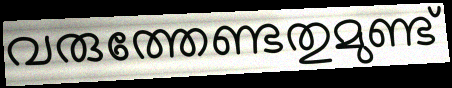
വരുത്തേണ്ടതുമുണ്ട്